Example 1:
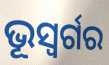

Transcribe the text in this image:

ଭୂସ୍ବର୍ଗର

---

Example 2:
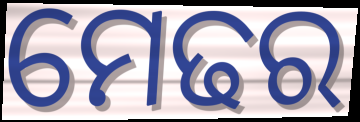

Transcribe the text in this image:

ମେଢର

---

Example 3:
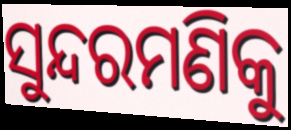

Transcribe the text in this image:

ସୁନ୍ଦରମଣିକୁ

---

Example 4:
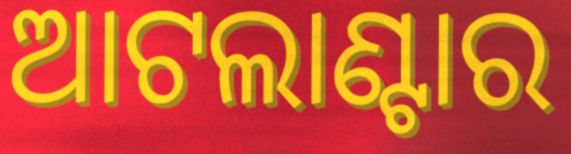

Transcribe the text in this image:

ଆଟଲାଣ୍ଟାର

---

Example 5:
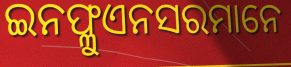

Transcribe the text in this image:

ଇନଫ୍ଳୁଏନସରମାନେ